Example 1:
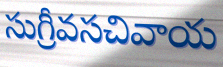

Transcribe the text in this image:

సుగ్రీవసచివాయ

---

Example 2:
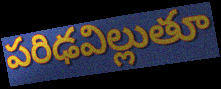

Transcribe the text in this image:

పరిఢవిల్లుతూ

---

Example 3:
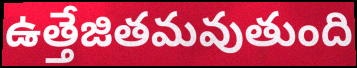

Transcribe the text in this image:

ఉత్తేజితమవుతుంది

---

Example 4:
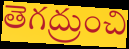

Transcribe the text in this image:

తెగద్రుంచి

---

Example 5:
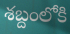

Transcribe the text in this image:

శబ్దంలోకి